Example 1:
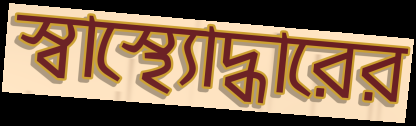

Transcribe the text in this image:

স্বাস্থ্যোদ্ধারের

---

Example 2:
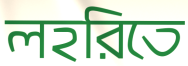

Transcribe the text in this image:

লহরিতে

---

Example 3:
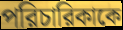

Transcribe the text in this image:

পরিচারিকাকে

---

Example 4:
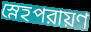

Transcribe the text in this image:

স্নেহপরায়ণ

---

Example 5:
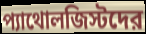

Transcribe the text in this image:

প্যাথোলজিস্টদের